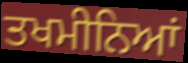
ਤਖਮੀਨਿਆਂ